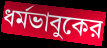
ধর্মভাবুকের